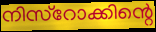
നിസ്റോക്കിന്റെ